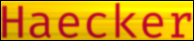
Haecker